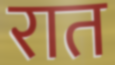
रात